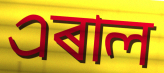
এৰাল